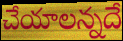
చేయాలన్నదే